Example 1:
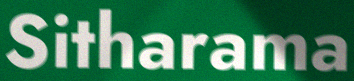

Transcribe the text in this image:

Sitharama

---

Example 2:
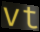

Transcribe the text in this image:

vt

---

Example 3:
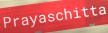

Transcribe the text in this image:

Prayaschitta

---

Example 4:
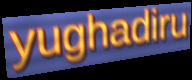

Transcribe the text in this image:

yughadiru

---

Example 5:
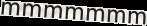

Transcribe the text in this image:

mmmmmmm